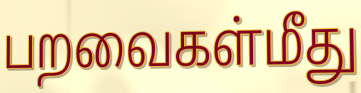
பறவைகள்மீது